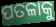
ପତଳାକୁ